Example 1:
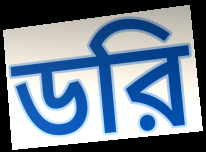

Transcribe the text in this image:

ডরি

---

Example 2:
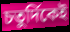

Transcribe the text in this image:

চতুর্দিকেই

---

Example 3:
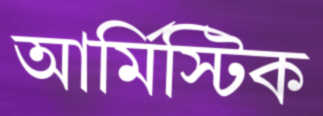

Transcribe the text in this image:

আর্মিস্টিক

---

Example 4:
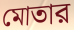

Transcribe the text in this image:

মোতার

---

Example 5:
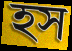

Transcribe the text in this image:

হস